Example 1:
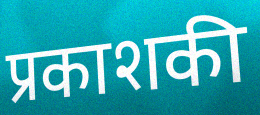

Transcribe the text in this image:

प्रकाशकी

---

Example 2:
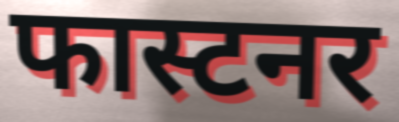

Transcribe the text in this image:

फास्टनर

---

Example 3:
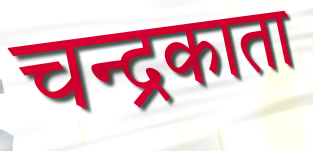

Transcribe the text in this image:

चन्द्रकाता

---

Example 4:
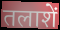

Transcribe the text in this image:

तलाशें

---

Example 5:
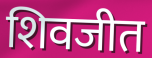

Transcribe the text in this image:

शिवजीत